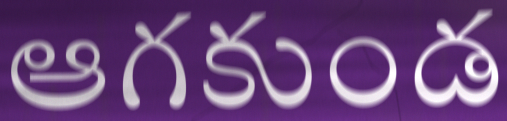
ఆగకుండ